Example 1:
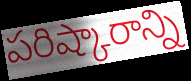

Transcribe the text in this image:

పరిష్కారాన్ని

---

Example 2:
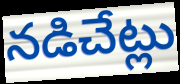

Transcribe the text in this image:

నడిచేట్లు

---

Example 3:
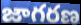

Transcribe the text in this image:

జాగరణ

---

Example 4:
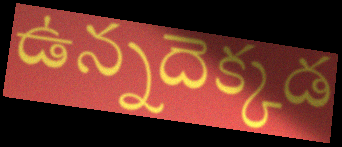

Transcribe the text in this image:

ఉన్నదెక్కడ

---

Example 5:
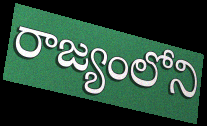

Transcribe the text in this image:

రాజ్యంలోని